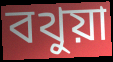
বথুয়া